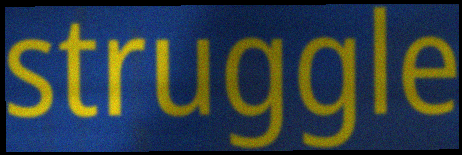
struggle